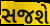
સજશે